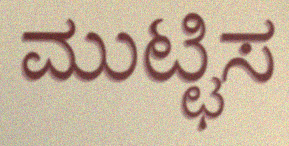
ಮುಟ್ಟಿಸ